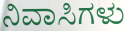
ನಿವಾಸಿಗಳು